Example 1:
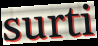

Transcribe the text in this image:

surti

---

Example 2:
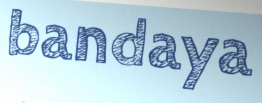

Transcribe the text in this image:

bandaya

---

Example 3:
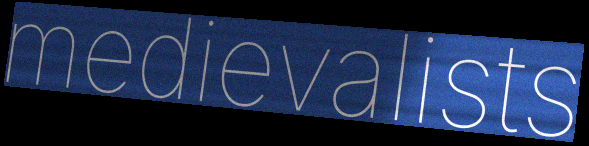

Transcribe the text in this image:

medievalists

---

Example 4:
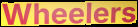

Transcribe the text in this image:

Wheelers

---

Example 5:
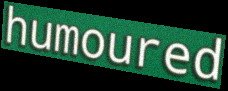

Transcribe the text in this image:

humoured